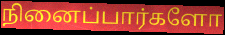
நினைப்பார்களோ